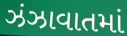
ઝંઝાવાતમાં